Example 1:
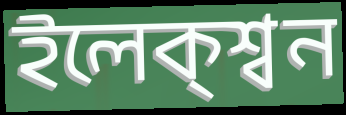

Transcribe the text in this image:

ইলেক্‌শ্বন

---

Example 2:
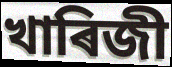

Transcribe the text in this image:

খাৰিজী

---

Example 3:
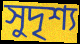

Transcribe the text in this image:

সুদৃশ্য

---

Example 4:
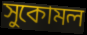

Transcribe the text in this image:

সুকোমল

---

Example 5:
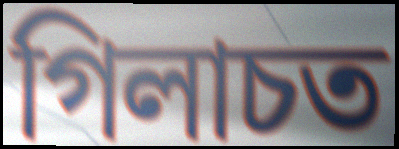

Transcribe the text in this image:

গিলাচত